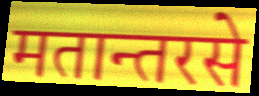
मतान्तरसे